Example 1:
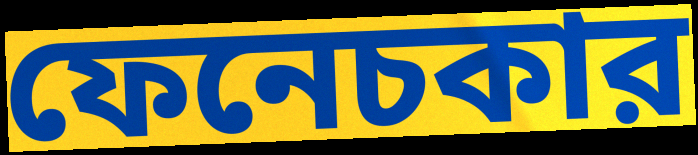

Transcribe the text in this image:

ফেনেচকার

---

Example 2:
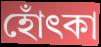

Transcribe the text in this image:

হোঁৎকা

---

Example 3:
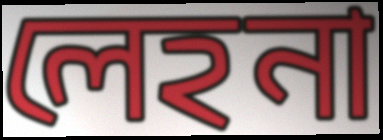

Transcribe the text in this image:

লেহনা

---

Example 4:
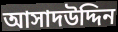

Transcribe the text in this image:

আসাদউদ্দিন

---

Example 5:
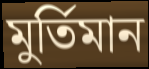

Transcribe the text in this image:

মুর্তিমান